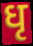
धृ